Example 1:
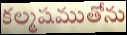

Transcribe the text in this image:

కల్మషముతోను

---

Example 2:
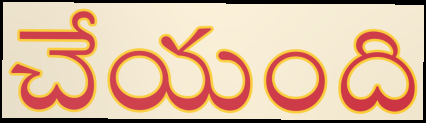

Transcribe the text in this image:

చేయంది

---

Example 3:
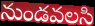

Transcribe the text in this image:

నుండవలసి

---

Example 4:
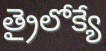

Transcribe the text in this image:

త్రైలోక్యే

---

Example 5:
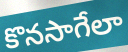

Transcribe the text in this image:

కొనసాగేలా